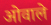
ओवाले